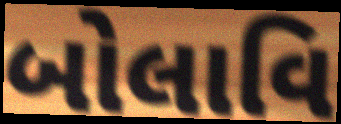
બોલાવિ